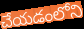
చేయడంలోని